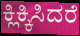
ಕ್ಲಿಕ್ಕಿಸಿದರೆ